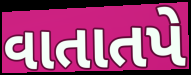
વાતાતપે